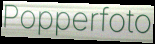
Popperfoto